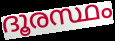
ദൂരസ്ഥം